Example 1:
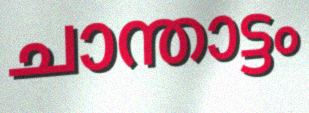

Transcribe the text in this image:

ചാന്താട്ടം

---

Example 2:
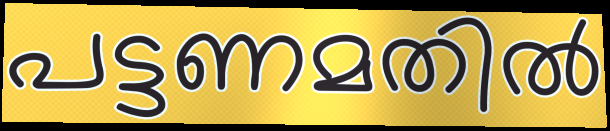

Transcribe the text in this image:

പട്ടണമതിൽ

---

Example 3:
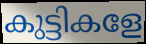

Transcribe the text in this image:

കുട്ടികളേ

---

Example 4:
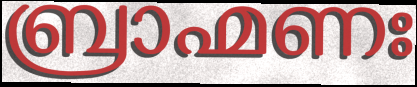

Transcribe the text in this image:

ബ്രാഹ്മണഃ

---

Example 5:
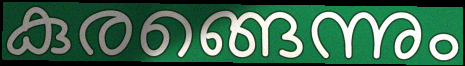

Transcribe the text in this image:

കുരങ്ങെന്നും